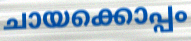
ചായക്കൊപ്പം